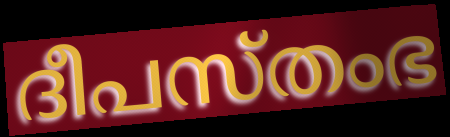
ദീപസ്തംഭ